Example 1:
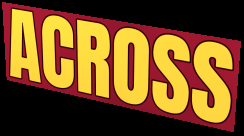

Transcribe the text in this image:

ACROSS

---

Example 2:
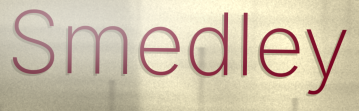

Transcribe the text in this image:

Smedley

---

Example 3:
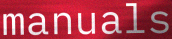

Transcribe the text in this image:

manuals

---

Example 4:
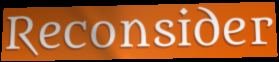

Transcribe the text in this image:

Reconsider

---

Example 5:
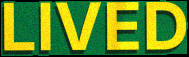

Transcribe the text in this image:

LIVED